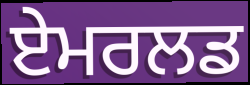
ਏਮਰਲਡ